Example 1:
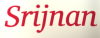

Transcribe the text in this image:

Srijnan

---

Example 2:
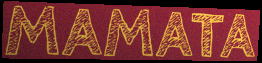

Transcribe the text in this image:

MAMATA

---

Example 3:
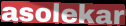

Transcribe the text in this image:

asolekar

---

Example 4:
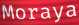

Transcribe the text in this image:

Moraya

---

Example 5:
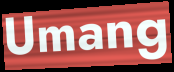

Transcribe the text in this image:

Umang